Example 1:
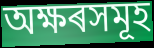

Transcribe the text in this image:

অক্ষৰসমূহ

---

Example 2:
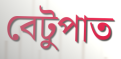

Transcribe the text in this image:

বেটুপাত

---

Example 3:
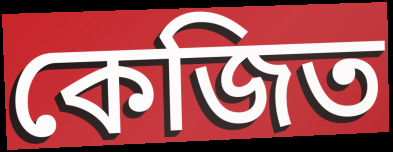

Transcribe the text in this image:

কেজিত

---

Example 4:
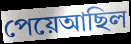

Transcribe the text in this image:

পেয়েআছিল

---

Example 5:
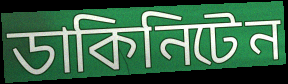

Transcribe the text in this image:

ডাকিনিটেন